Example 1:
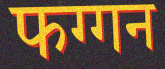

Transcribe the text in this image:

फग्‍गन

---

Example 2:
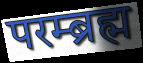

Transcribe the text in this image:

परम्ब्रह्म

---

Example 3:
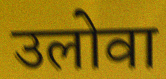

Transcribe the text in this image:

उलोवा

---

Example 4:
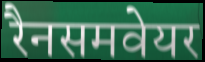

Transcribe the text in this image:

रैनसमवेयर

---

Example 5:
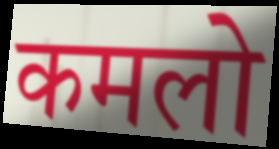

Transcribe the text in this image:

कमलो